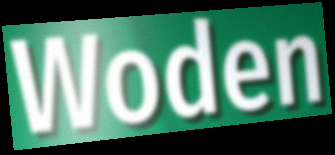
Woden